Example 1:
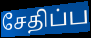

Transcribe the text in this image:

சேதிப்ப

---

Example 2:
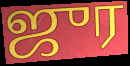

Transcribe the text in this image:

ஜுர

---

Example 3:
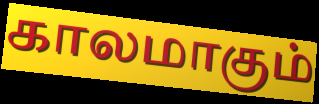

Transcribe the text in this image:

காலமாகும்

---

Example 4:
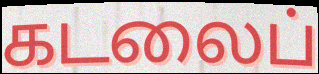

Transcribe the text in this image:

கடலைப்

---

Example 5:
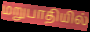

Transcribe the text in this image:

மறுபாதியில்